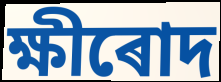
ক্ষীৰোদ